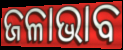
ଜଳାଭାବ